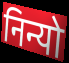
निन्यो